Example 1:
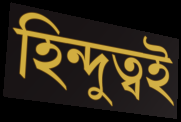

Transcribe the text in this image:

হিন্দুত্বই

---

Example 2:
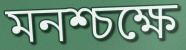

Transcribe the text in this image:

মনশ্চক্ষে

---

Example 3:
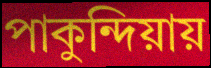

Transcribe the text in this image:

পাকুন্দিয়ায়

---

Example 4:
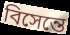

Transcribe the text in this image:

বিসেন্তে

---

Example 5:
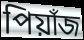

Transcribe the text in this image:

পিয়াঁজ